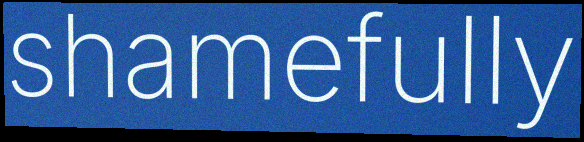
shamefully